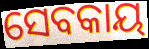
ସେବକାୟ